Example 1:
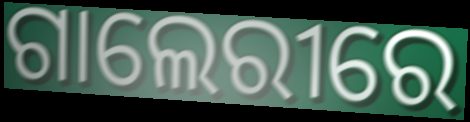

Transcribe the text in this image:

ଗାଲେରୀରେ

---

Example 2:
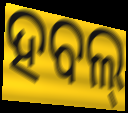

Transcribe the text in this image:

ହବଲ୍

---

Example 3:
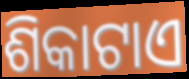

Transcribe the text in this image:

ଶିକାଟାଏ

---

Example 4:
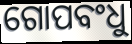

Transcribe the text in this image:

ଗୋପବଂଧୁ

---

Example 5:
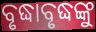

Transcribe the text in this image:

ବୃଦ୍ଧାବୃଦ୍ଧଙ୍କୁ